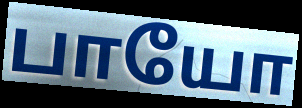
பாயோ